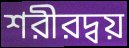
শরীরদ্বয়